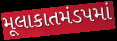
મૂલાકાતમંડપમાં